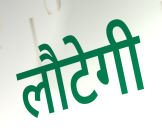
लौटेगी